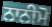
ਨਾਨੀਮੋ